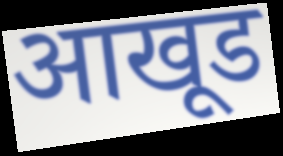
आखूड